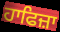
ਹਾਫਿਜ਼ਾ